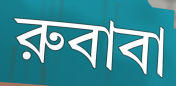
রুবাবা